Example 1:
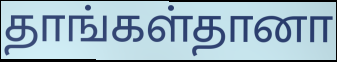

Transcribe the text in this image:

தாங்கள்தானா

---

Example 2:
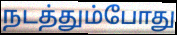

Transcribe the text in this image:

நடத்தும்போது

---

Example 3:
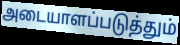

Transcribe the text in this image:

அடையாளப்படுத்தும்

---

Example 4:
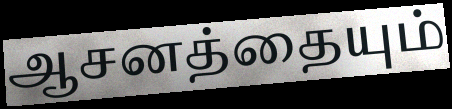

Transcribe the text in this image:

ஆசனத்தையும்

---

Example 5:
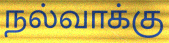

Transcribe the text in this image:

நல்வாக்கு